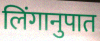
लिंगानुपात